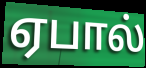
ஏபால்